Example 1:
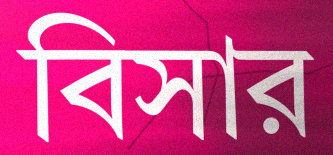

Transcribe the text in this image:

বিসার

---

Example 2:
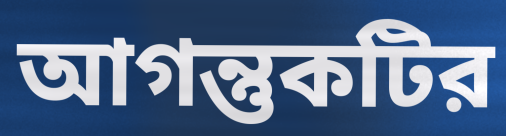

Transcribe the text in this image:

আগন্তুকটির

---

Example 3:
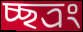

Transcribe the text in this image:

চ্ছত্রং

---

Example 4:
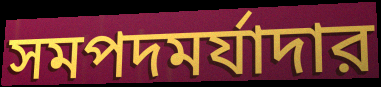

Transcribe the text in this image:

সমপদমর্যাদার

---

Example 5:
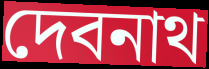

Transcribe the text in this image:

দেবনাথ